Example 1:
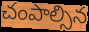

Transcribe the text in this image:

చంపాల్సిన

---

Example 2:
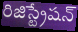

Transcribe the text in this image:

రిజిస్ట్రేషన్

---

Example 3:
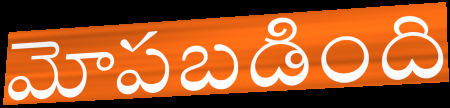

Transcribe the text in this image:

మోపబడింది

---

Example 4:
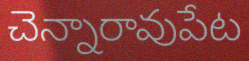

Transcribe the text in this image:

చెన్నారావుపేట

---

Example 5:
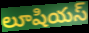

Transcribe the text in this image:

లూషియస్